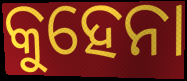
କୁହେନା